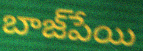
బాజ్‌పేయి